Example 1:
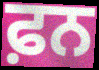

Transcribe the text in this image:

ਫ਼ਨ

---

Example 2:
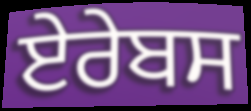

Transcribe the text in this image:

ਏਰੇਬਸ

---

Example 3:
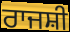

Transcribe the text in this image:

ਰਾਜਸ਼ੀ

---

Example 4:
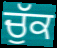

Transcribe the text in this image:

ਚੁੱਕ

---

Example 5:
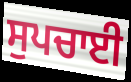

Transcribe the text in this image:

ਸੁਪਚਾਈ